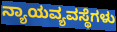
ನ್ಯಾಯವ್ಯವಸ್ಥೆಗಳು